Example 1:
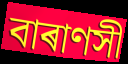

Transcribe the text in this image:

বাৰাণসী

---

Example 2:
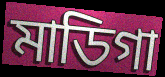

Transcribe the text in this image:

মাডিগা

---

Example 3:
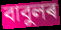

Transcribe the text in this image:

বাবুলৰ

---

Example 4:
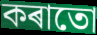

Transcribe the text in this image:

কৰাতো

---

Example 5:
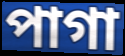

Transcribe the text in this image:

পাগা